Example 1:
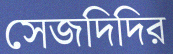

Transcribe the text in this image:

সেজদিদির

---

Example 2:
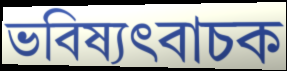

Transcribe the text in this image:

ভবিষ্যৎবাচক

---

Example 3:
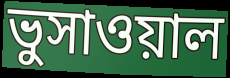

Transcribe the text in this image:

ভুসাওয়াল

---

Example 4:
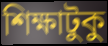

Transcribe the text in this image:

শিক্ষাটুকু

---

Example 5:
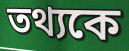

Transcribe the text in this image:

তথ্যকে